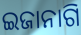
ଇଜାନାଗି